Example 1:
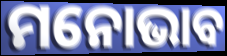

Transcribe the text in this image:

ମନୋଭାବ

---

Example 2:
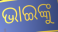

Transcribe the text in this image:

ଭାଇଙ୍କୁ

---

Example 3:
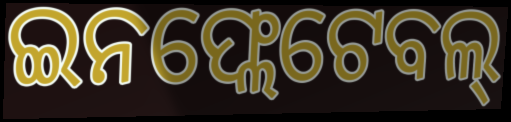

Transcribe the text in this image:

ଇନଫ୍ଲେଟେବଲ୍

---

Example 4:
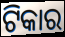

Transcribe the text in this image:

ଟିକାର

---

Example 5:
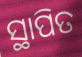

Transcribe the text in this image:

ସ୍ଥାପିତ